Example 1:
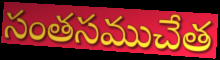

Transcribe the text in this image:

సంతసముచేత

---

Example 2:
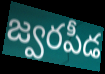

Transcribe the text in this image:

జ్వరపీడ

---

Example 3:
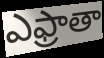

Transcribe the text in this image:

ఎఫ్రాతా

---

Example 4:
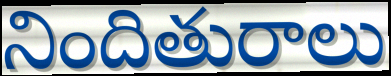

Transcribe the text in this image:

నిందితురాలు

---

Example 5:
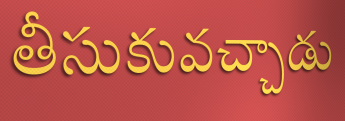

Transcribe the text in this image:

తీసుకువచ్చాడు